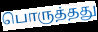
பொருத்தது